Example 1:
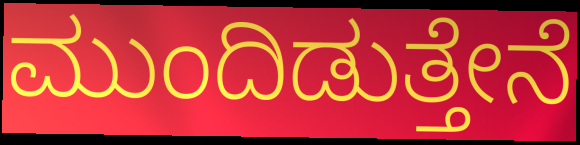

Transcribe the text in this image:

ಮುಂದಿಡುತ್ತೇನೆ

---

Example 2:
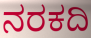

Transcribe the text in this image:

ನರಕದಿ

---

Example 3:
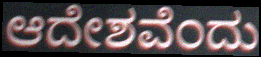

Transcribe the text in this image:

ಆದೇಶವೆಂದು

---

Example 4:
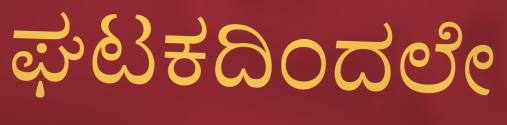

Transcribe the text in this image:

ಘಟಕದಿಂದಲೇ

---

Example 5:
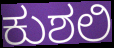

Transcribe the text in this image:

ಕುಶಲಿ